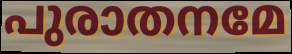
പുരാതനമേ